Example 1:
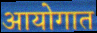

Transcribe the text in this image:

आयोगात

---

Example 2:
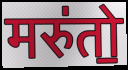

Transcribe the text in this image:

मरु॑तो॒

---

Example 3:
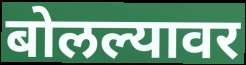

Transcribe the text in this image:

बोलल्यावर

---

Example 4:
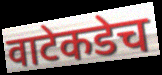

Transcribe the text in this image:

वाटेकडेच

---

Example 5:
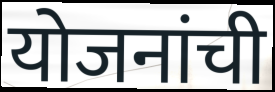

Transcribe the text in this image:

योजनांची